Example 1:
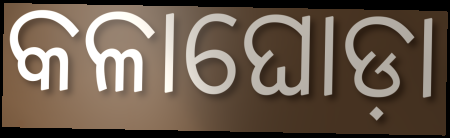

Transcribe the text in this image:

କଳାଘୋଡ଼ା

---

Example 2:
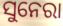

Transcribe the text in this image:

ସୁନେରା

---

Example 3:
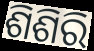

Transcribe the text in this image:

ଶିଶିରି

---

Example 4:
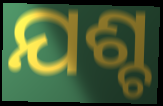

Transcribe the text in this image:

ଯଶ୍ଚ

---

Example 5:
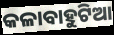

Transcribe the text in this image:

କଳାବାହୁଟିଆ